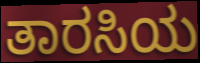
ತಾರಸಿಯ